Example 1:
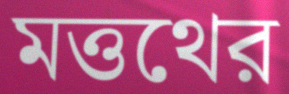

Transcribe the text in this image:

মত্তথের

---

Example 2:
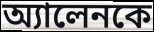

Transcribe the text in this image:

অ্যালেনকে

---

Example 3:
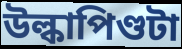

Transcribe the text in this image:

উল্কাপিণ্ডটা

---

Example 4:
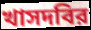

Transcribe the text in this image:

খাসদবির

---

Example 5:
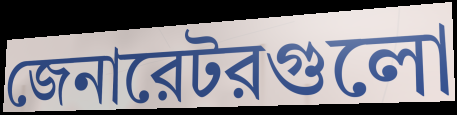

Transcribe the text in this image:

জেনারেটরগুলো